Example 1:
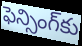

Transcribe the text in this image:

ఫెన్సింగ్‌కు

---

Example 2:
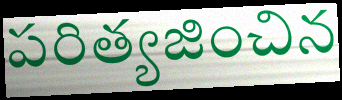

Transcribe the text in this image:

పరిత్యజించిన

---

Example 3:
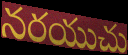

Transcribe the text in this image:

నరయుచు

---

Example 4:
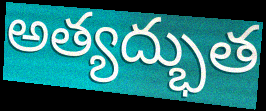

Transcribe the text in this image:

అత్యద్భుత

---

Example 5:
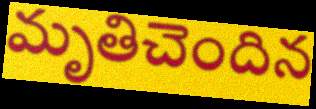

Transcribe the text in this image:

మృతిచెందిన